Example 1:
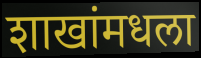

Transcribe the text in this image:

शाखांमधला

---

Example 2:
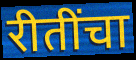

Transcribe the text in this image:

रीतींचा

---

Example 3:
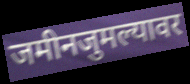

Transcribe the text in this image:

जमीनजुमल्यावर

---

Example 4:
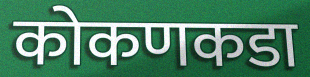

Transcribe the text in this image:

कोकणकडा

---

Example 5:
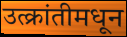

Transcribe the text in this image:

उत्क्रांतीमधून